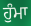
ਹੁੰਮਾ